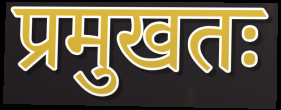
प्रमुखतः